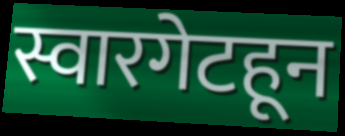
स्वारगेटहून